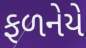
ફળનેયે